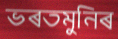
ভৰতমুনিৰ